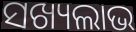
ସଖ୍ୟଲାଭ